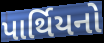
પાર્થિયનો